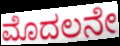
ಮೊದಲನೇ